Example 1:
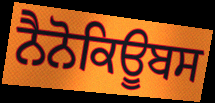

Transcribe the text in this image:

ਨੈਨੋਕਿਊਬਸ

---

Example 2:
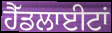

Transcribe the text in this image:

ਹੈੱਡਲਾਈਟਾਂ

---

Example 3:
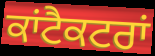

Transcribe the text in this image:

ਕਾਂਟੈਕਟਰਾਂ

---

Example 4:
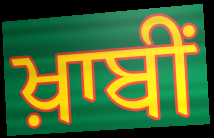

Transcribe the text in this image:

ਖ਼ਾਬੀਂ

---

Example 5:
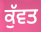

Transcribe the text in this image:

ਕੁੱਵਤ